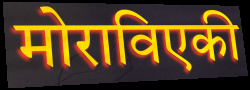
मोराविएकी